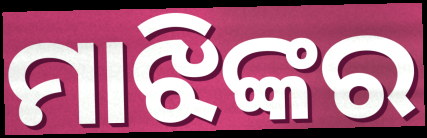
ମାଝିଙ୍କର